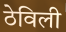
ठेविली